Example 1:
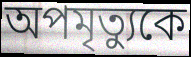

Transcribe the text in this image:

অপমৃত্যুকে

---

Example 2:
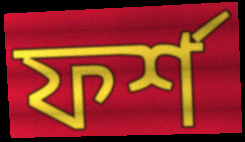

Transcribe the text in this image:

ফর্শ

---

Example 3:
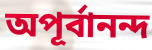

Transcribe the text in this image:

অপূর্বানন্দ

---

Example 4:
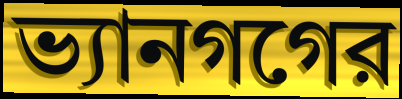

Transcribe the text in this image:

ভ্যানগগের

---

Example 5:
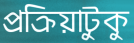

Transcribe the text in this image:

প্রক্রিয়াটুকু